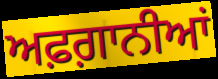
ਅਫ਼ਗ਼ਾਨੀਆਂ